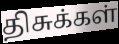
திசுக்கள்